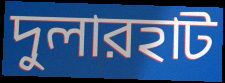
দুলারহাট